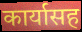
कार्यासह